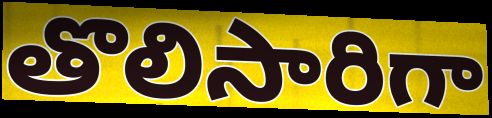
తొలిసారిగా